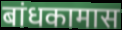
बांधकामास